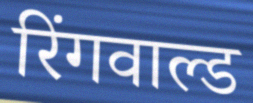
रिंगवाल्ड